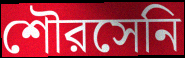
শৌরসেনি